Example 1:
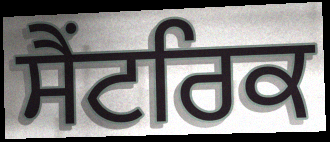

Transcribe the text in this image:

ਸੈਂਟਰਿਕ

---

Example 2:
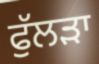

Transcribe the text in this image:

ਫੁੱਲੜਾ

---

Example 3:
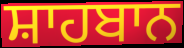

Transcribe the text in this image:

ਸ਼ਾਹਬਾਨ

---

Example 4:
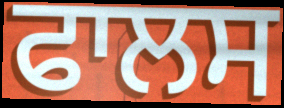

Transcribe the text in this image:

ਫਾਲਸ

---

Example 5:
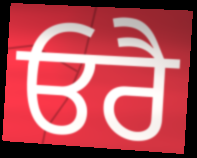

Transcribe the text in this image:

ਓਰੈ